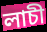
লাচী